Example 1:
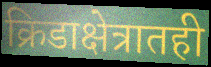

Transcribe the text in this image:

क्रिडाक्षेत्रातही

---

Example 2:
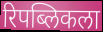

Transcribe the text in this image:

रिपब्लिकला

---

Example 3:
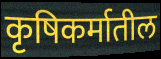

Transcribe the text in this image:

कृषिकर्मातील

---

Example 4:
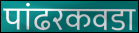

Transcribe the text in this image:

पांढरकवडा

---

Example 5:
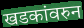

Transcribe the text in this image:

खडकांवरुन